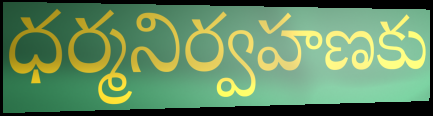
ధర్మనిర్వహణకు